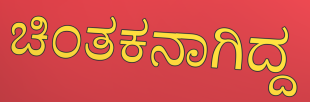
ಚಿಂತಕನಾಗಿದ್ದ